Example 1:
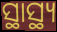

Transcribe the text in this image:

ସ୍ଥାସ୍ଥ୍ୟ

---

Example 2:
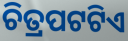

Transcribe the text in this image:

ଚିତ୍ରପଟଟିଏ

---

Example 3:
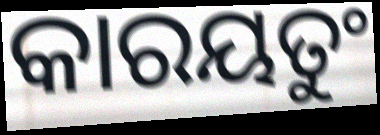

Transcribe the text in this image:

କାରୟତୁଂ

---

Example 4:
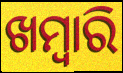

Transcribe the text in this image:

ଖମ୍ୱାରି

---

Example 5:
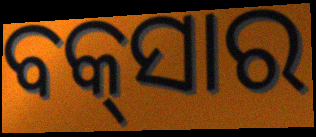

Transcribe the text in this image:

ବକ୍‌ସାର